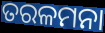
ତରଳମନା